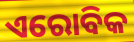
ଏରୋବିକ